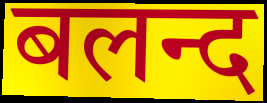
बलन्द